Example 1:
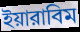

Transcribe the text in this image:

ইয়ারাবিম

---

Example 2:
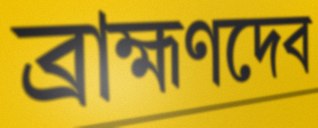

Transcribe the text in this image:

ব্রাহ্মণদেব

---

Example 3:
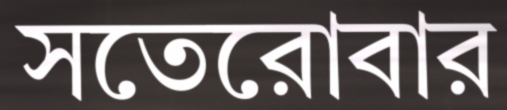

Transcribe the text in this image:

সতেরোবার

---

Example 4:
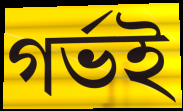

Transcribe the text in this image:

গর্ভই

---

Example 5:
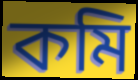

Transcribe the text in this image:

কমি